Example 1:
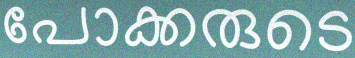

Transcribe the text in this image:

പോക്കരുടെ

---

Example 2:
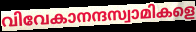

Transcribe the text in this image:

വിവേകാനന്ദസ്വാമികളെ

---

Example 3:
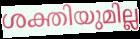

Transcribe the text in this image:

ശക്തിയുമില്ല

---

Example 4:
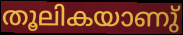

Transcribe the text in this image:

തൂലികയാണു്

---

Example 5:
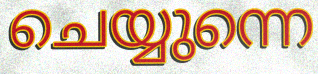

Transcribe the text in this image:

ചെയ്യുന്നെ